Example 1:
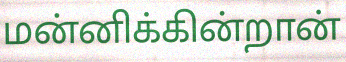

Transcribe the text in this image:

மன்னிக்கின்றான்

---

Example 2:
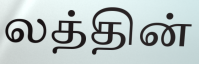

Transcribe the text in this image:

லத்தின்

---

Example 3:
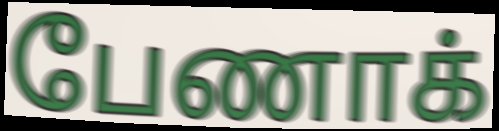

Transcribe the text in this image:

பேணாக்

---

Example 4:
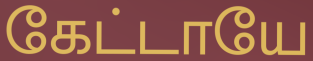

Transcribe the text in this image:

கேட்டாயே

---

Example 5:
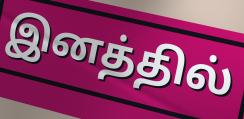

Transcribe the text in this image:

இனத்தில்